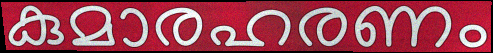
കുമാരഹരണം